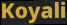
Koyali